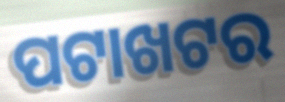
ପଟାଖଟର